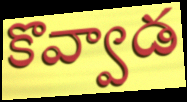
కొవ్వాడ